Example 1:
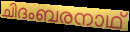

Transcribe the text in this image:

ചിദംബരനാഥ്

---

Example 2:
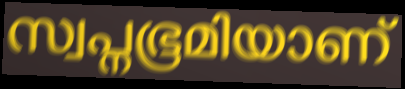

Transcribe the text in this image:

സ്വപ്നഭൂമിയാണ്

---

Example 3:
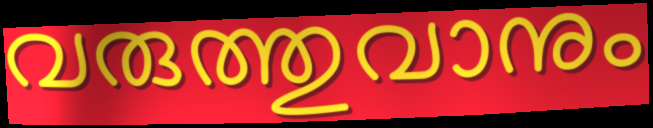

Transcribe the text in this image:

വരുത്തുവാനും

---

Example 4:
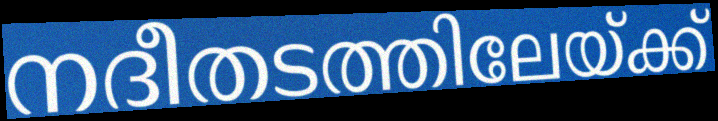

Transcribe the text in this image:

നദീതടത്തിലേയ്ക്ക്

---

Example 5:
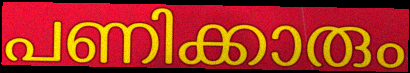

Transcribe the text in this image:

പണിക്കാരും